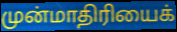
முன்மாதிரியைக்